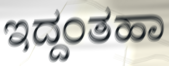
ಇದ್ದಂತಹಾ